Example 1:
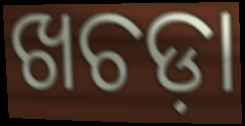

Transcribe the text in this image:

ଖଚଡ଼ା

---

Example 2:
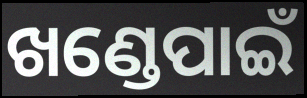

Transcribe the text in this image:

ଖଣ୍ଡେପାଇଁ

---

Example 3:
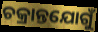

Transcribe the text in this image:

ଚକ୍ରାନ୍ତଯୋଗୁଁ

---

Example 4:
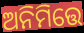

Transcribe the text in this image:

ଅନିମିତ୍ତେ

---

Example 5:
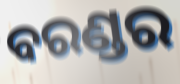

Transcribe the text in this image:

ବରଣ୍ଡର